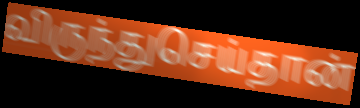
விருந்துசெய்தான்